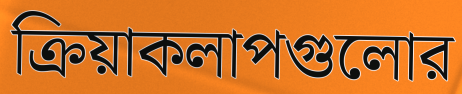
ক্রিয়াকলাপগুলোর